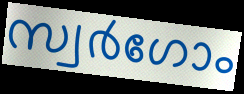
സ്വർഗോം